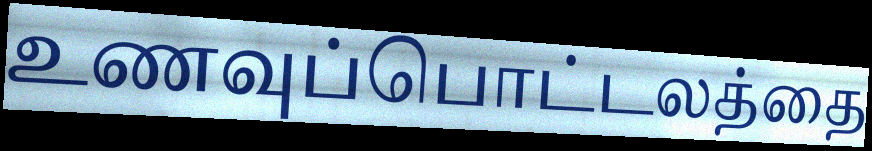
உணவுப்பொட்டலத்தை